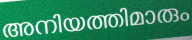
അനിയത്തിമാരും